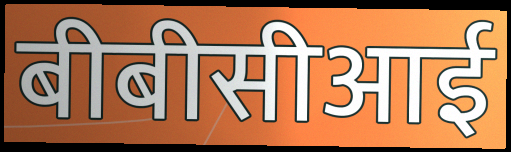
बीबीसीआई